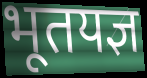
भूतयज्ञ